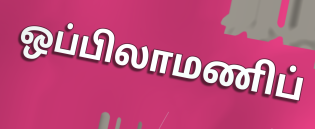
ஒப்பிலாமணிப்